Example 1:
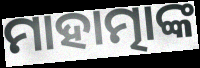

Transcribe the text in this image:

ମାହାତ୍ମାଙ୍କ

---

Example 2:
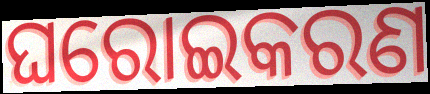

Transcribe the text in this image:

ଘରୋଇକରଣ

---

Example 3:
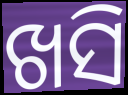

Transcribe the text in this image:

ଖସି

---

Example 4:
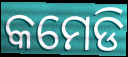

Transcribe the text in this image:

କମେଡି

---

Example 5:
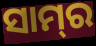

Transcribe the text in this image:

ସାମ୍‌ର